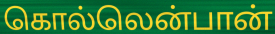
கொல்லென்பான்